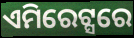
ଏମିରେଟ୍ସରେ